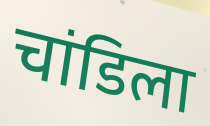
चांडिला